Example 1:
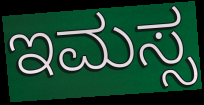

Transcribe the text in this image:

ಇಮಸ್ಸ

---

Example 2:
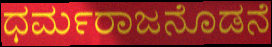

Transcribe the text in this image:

ಧರ್ಮರಾಜನೊಡನೆ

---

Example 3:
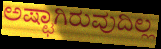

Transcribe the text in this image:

ಅಷ್ಟಾಗಿರುವುದಿಲ್ಲ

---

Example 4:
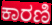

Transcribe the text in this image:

ಕಾರಣಿ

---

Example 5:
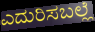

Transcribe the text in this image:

ಎದುರಿಸಬಲ್ಲೆ